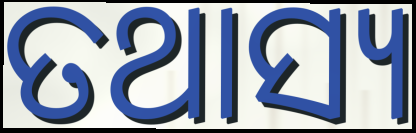
ତଥାସ୍ୟ